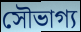
সৌভাগ্য